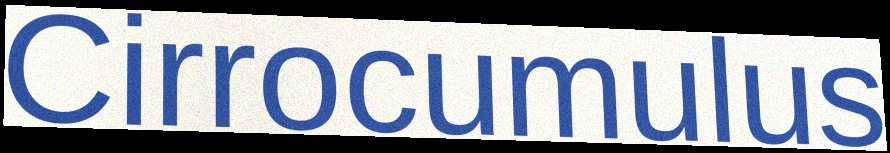
Cirrocumulus